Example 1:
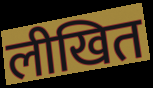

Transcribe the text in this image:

लीखित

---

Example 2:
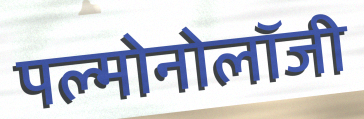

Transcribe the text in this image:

पल्मोनोलॉजी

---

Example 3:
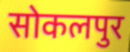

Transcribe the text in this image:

सोकलपुर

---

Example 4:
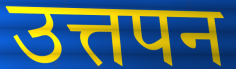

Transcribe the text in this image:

उत्तपन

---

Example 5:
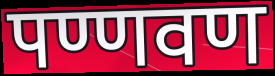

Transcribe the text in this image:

पण्णवण